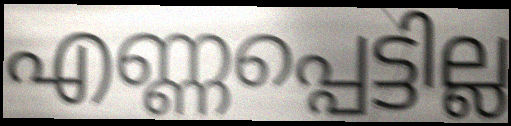
എണ്ണപ്പെട്ടില്ല